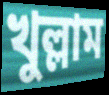
খুল্লাম